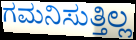
ಗಮನಿಸುತ್ತಿಲ್ಲ